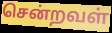
சென்றவள்